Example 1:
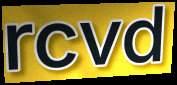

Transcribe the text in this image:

rcvd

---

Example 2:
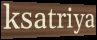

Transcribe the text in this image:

ksatriya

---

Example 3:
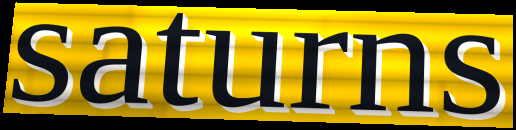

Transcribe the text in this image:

saturns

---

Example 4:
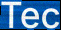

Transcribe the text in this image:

Tec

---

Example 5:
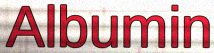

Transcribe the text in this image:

Albumin